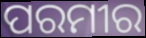
ପରମୀର